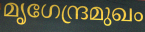
മൃഗേന്ദ്രമുഖം